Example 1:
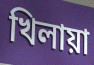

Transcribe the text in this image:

খিলায়া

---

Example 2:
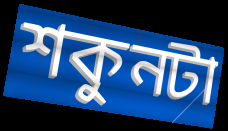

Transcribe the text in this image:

শকুনটা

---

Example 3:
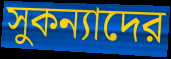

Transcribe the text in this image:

সুকন্যাদের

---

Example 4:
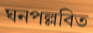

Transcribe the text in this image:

ঘনপল্লবিত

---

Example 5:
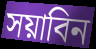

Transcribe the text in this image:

সয়াবিন